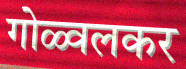
गोळ्वलकर